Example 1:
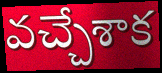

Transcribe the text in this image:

వచ్చేశాక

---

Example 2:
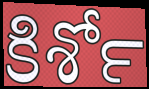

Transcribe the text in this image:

కిశోర్‍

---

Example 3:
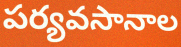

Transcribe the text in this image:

పర్యవసానాల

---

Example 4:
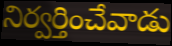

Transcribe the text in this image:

నిర్వర్తించేవాడు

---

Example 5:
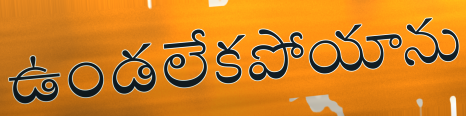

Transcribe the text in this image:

ఉండలేకపోయాను